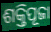
ଶକ୍ତିପୂଜା